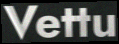
Vettu